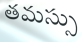
తమస్సు